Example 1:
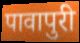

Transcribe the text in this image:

पावापुरी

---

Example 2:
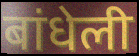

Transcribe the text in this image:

बांधेली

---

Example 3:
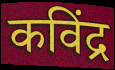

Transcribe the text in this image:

कविंद्र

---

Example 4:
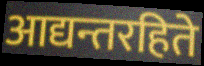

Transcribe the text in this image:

आद्यन्तरहिते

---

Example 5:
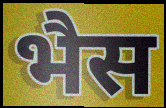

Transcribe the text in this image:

भैस